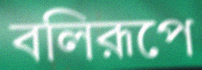
বলিরূপে